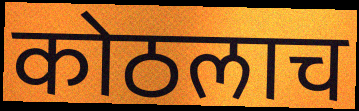
कोठलाच